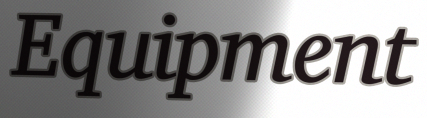
Equipment